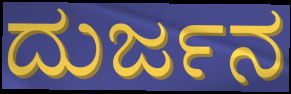
ದುರ್ಜನ